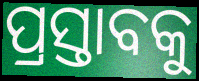
ପ୍ରସ୍ତାବକୁ